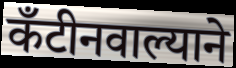
कँटीनवाल्याने